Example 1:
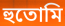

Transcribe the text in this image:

হুতোমি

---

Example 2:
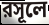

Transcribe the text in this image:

রসূলে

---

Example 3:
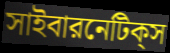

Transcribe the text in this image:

সাইবারনেটিক্‌স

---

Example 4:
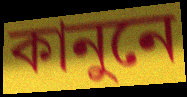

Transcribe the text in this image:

কানুনে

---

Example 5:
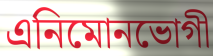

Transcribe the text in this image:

এনিমোনভোগী